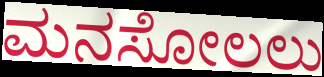
ಮನಸೋಲಲು